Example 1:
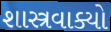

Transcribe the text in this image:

શાસ્ત્રવાક્યો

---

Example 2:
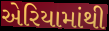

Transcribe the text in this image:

એરિયામાંથી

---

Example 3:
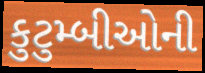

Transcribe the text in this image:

કુટુમ્બીઓની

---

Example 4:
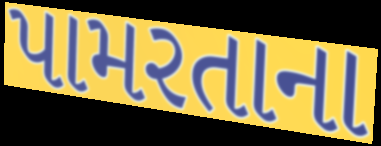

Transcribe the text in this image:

પામરતાના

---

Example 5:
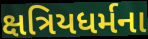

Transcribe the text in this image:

ક્ષત્રિયધર્મના